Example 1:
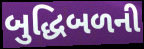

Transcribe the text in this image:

બુદ્ધિબળની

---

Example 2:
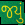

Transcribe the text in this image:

જયું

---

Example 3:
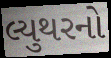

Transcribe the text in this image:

લ્યુથરનો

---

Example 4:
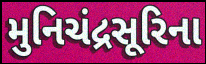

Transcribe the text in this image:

મુનિચંદ્રસૂરિના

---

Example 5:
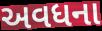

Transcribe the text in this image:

અવધના